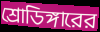
শ্রোডিঙ্গারের